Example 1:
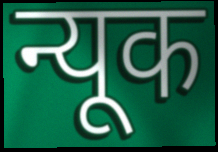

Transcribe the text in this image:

न्यूक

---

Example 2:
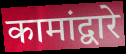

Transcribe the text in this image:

कामांद्वारे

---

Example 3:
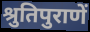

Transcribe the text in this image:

श्रुतिपुराणें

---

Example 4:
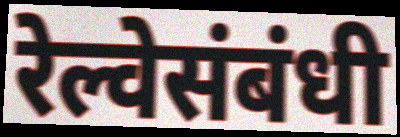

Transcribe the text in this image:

रेल्वेसंबंधी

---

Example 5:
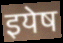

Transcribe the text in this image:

इयेष